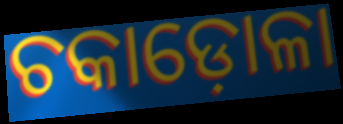
ଚକାଡ଼ୋଳା